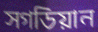
সগডিয়ান